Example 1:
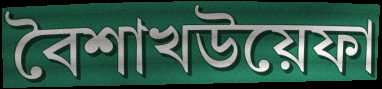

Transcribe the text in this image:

বৈশাখউয়েফা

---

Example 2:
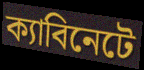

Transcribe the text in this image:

ক্যাবিনেটে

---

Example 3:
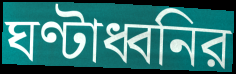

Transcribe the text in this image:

ঘণ্টাধ্বনির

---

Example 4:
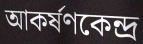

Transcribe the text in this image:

আকর্ষণকেন্দ্র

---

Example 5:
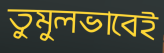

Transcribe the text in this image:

তুমুলভাবেই